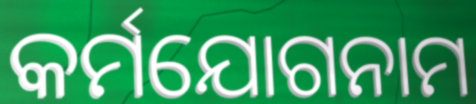
କର୍ମଯୋଗନାମ